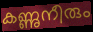
കണ്ണുനീരും